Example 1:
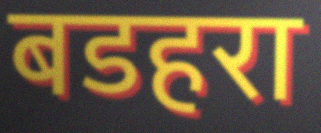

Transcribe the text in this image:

बडहरा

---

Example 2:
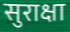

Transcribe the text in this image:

सुराक्षा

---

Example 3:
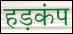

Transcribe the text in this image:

हड़कंप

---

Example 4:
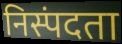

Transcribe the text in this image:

निस्पंदता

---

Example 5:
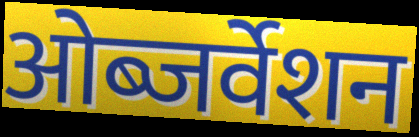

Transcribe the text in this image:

ओब्ज़र्वेशन